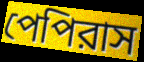
পেপিরাস